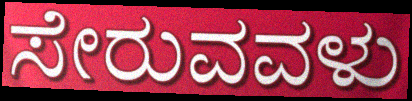
ಸೇರುವವಳು